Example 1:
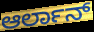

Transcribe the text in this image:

ಆರ್ಲಾನ್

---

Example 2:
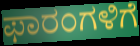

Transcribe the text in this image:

ಫಾರಂಗಳಿಗೆ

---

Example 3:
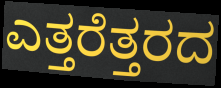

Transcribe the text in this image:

ಎತ್ತರೆತ್ತರದ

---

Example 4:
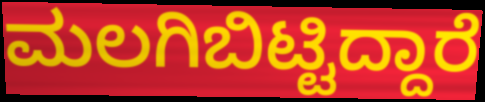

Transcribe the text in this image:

ಮಲಗಿಬಿಟ್ಟಿದ್ದಾರೆ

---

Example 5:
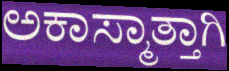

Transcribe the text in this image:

ಅಕಾಸ್ಮಾತ್ತಾಗಿ